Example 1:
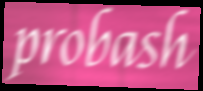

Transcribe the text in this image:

probash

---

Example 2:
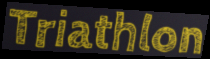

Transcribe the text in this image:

Triathlon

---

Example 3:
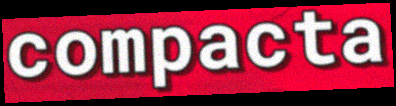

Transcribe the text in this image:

compacta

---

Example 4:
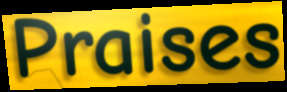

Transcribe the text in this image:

Praises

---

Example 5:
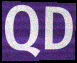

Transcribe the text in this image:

QD